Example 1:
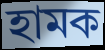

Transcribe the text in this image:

হামক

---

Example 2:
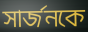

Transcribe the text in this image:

সার্জনকে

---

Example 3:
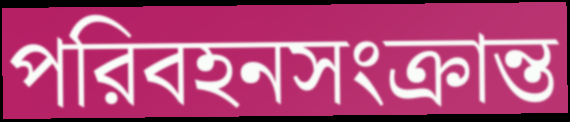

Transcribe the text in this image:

পরিবহনসংক্রান্ত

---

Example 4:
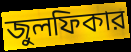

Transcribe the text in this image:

জুলফিকার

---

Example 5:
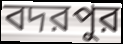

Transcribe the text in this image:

বদরপুর